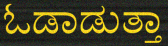
ಓಡಾಡುತ್ತಾ